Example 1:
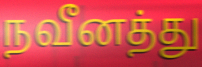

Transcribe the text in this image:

நவீனத்து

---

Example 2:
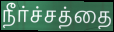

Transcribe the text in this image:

நீர்ச்சத்தை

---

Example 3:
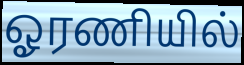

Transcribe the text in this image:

ஓரணியில்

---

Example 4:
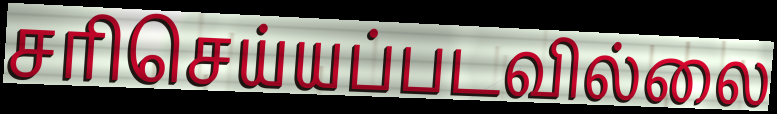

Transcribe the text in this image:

சரிசெய்யப்படவில்லை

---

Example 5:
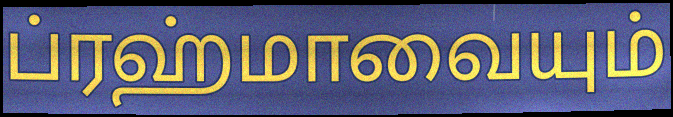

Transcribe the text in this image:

ப்ரஹ்மாவையும்